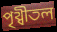
পৃথ্বীতল